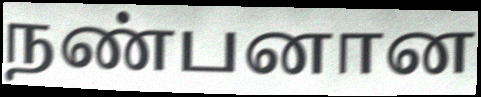
நண்பனான